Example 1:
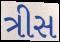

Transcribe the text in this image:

ત્રીસ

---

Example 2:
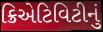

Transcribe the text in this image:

ક્રિએટિવિટીનું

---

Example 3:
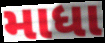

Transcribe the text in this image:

માધા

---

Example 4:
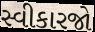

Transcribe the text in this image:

સ્વીકારજો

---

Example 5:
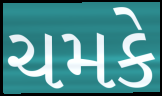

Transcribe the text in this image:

ચમકે